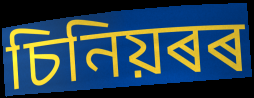
চিনিয়ৰৰ